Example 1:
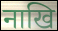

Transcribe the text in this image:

नाखि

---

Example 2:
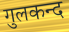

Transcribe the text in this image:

गुलकन्द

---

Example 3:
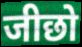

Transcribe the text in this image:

जीछो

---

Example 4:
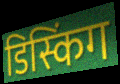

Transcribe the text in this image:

डिस्किंग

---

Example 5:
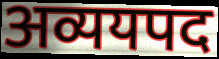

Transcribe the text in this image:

अव्ययपद